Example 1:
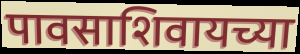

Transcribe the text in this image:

पावसाशिवायच्या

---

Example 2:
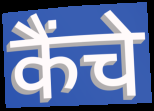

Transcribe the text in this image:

कैंचे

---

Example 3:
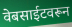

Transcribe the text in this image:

वेबसाईटवरून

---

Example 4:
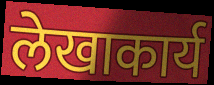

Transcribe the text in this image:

लेखाकार्य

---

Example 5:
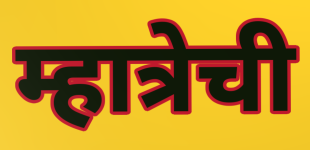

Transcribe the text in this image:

म्हात्रेची